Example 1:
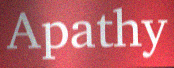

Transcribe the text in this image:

Apathy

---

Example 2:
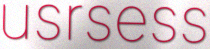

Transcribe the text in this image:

usrsess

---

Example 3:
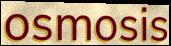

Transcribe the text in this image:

osmosis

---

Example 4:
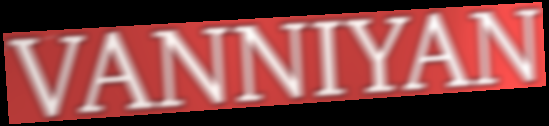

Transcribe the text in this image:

VANNIYAN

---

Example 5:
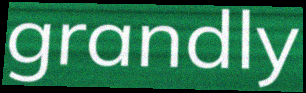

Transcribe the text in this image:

grandly